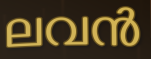
ലവൻ